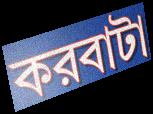
করবাটা